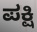
ಪಕ್ಷಿ